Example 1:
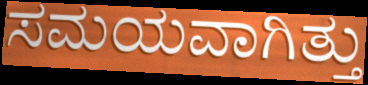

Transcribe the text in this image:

ಸಮಯವಾಗಿತ್ತು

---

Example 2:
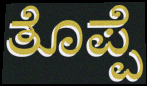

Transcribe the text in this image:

ತೊಪ್ಪೆ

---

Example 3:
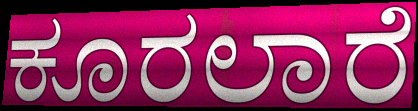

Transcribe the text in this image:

ಕೂರಲಾರೆ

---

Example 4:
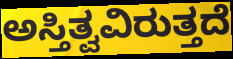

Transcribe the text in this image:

ಅಸ್ತಿತ್ವವಿರುತ್ತದೆ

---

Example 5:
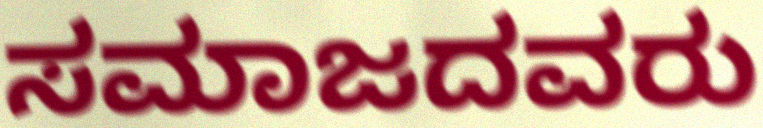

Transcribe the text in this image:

ಸಮಾಜದವರು